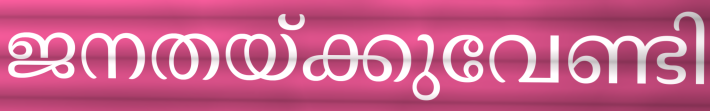
ജനതയ്ക്കുവേണ്ടി